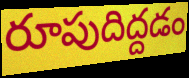
రూపుదిద్దడం